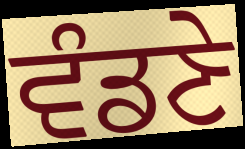
ਵੰਡਣੇ